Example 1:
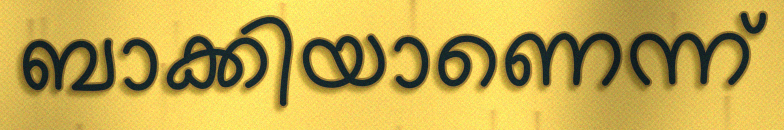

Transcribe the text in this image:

ബാക്കിയാണെന്ന്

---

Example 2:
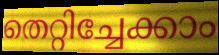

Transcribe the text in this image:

തെറ്റിച്ചേക്കാം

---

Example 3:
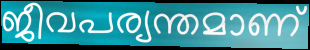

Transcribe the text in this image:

ജീവപര്യന്തമാണ്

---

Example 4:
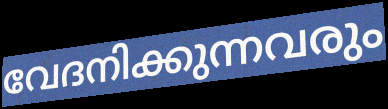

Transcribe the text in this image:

വേദനിക്കുന്നവരും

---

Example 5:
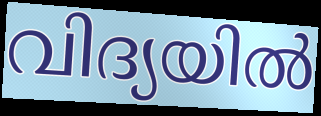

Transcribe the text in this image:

വിദ്യയിൽ